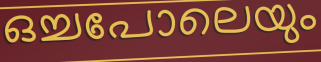
ഒച്ചപോലെയും